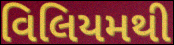
વિલિયમથી